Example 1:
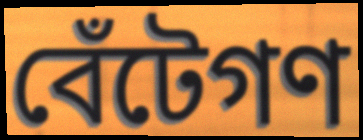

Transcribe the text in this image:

বেঁটেগণ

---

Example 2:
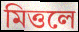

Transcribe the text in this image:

মিত্তলে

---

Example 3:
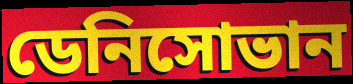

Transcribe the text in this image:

ডেনিসোভান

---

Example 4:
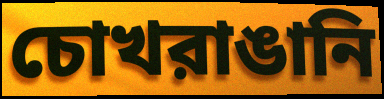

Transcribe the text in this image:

চোখরাঙানি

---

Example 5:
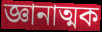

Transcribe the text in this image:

জ্ঞানাত্মক